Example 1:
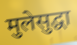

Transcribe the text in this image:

मुलेसुद्धा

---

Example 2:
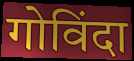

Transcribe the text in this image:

गोविंदा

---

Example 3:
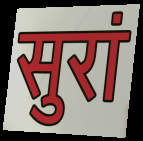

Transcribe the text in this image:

सुरां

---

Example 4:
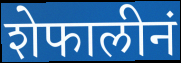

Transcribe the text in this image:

शेफालीनं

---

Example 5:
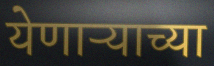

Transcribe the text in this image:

येणाऱ्याच्या